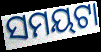
ସମୟଟା